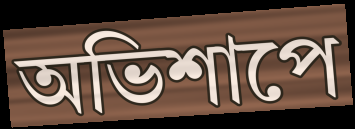
অভিশাপে